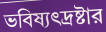
ভবিষ্যৎদ্রষ্টার